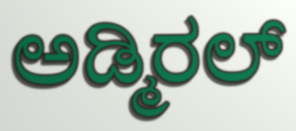
ಅಡ್ಮಿರಲ್